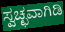
ಸ್ವಚ್ಛವಾಗಿಡಿ